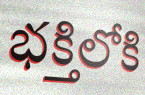
భక్తిలోకి